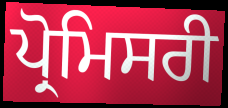
ਪ੍ਰੋਮਿਸਰੀ